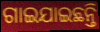
ଗାଇଯାଇଛନ୍ତି